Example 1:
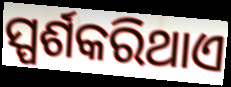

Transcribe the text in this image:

ସ୍ପର୍ଶକରିଥାଏ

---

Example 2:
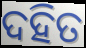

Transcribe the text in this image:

ଦହିତ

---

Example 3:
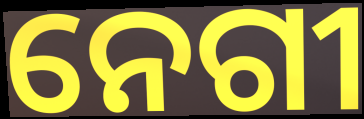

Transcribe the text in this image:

ନେଗୀ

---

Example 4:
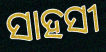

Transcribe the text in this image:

ସାହସୀ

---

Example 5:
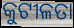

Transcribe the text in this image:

କୁଟୀଳତା